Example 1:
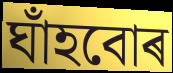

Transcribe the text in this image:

ঘাঁহবোৰ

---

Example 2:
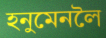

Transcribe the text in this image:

হনুমেনলৈ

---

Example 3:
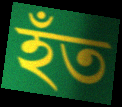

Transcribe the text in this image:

হঁত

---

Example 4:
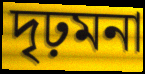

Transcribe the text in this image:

দৃঢ়মনা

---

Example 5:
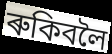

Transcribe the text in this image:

ৰুকিবলৈ